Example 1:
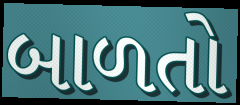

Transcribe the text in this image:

બાળતો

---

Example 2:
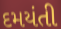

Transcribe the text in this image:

દમયંતી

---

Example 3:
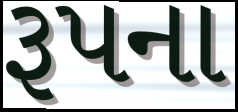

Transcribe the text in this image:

રૂપના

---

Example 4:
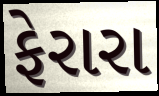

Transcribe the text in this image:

ફેરારા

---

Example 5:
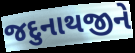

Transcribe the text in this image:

જદુનાથજીને